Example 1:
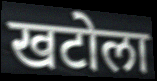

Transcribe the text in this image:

खटोला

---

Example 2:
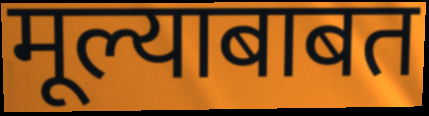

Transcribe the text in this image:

मूल्याबाबत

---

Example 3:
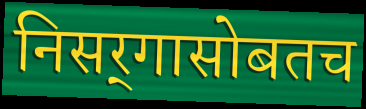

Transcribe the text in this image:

निसर्गासोबतच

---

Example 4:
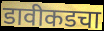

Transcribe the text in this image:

डावीकडचा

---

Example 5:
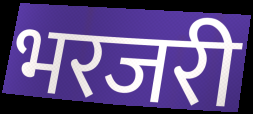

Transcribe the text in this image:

भरजरी